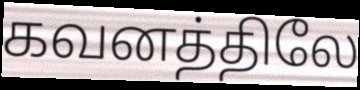
கவனத்திலே